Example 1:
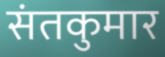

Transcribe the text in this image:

संतकुमार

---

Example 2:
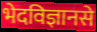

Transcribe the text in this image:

भेदविज्ञानसे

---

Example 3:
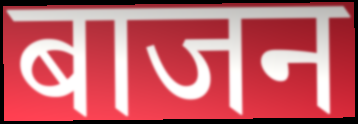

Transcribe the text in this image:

बाजन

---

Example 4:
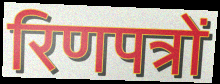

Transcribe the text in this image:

रिणपत्रों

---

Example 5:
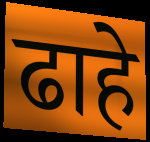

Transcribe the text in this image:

ढाहे